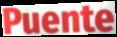
Puente